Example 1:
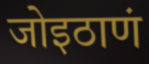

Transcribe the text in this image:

जोइठाणं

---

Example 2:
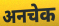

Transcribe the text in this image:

अनचेक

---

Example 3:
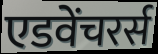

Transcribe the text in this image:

एडवेंचरर्स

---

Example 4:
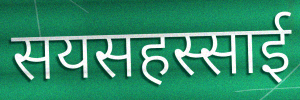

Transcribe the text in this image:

सयसहस्साई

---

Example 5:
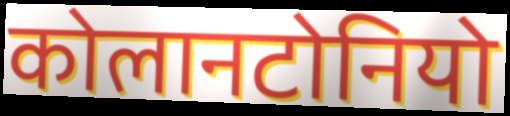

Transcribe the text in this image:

कोलानटोनियो